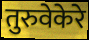
तुरुवेकेरे